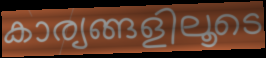
കാര്യങ്ങളിലൂടെ